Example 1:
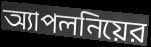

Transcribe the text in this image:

অ্যাপলনিয়ের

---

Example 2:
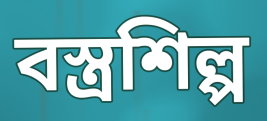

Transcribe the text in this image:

বস্ত্রশিল্প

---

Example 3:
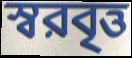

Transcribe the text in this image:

স্বরবৃত্ত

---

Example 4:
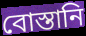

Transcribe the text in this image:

বোস্তানি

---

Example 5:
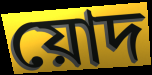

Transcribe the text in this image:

য়োদ